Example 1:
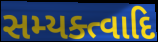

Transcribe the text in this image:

સમ્યક્ત્વાદિ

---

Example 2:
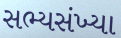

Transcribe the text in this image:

સભ્યસંખ્યા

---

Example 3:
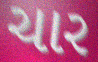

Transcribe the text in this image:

ચાર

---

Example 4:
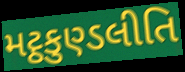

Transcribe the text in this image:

મટ્ઠકુણ્ડલીતિ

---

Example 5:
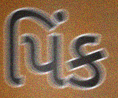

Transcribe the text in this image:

પિંક